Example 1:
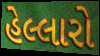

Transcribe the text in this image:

હેલ્લારો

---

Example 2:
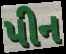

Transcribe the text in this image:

પીન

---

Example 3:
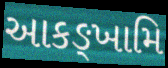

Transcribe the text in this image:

આકઙ્ખામિ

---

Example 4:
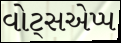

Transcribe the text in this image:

વોટ્સએપ્પ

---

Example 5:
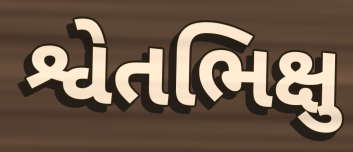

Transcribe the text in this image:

શ્વેતભિક્ષુ